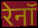
रेनॉ